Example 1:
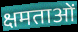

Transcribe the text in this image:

क्षमताओं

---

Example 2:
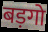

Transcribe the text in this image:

बड़गो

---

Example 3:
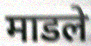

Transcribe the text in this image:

माडले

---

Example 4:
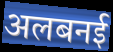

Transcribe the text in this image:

अलबनई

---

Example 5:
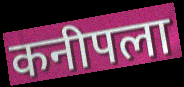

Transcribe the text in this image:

कनीपला